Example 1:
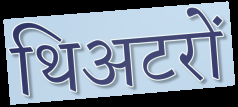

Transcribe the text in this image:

थिअटरों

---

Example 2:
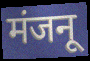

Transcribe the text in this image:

मंजनू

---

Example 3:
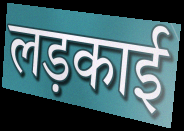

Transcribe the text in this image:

लड़काई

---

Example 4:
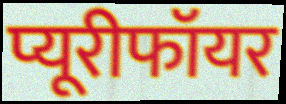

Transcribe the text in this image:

प्यूरीफॉयर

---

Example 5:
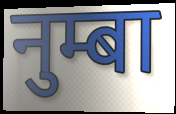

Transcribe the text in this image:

नुम्बा